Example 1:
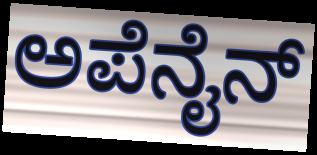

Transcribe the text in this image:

ಅಪೆನೈನ್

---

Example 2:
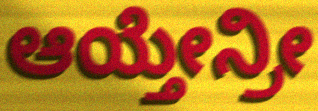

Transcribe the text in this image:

ಆಯ್ತೇನ್ರೀ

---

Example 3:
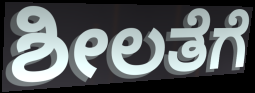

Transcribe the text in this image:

ಶೀಲತೆಗೆ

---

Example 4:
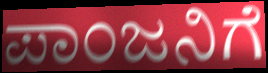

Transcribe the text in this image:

ಪಾಂಜನಿಗೆ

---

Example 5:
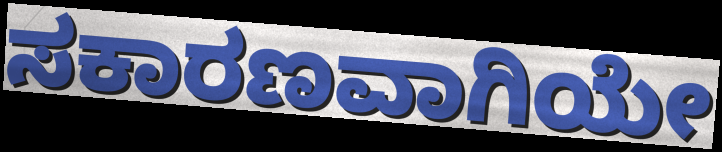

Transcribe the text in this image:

ಸಕಾರಣವಾಗಿಯೇ